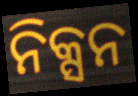
ନିକ୍ସନ